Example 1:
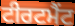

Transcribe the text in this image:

ਟੀਰਟਮੈਂਟ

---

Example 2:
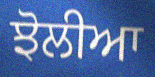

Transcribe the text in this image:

ਝੋਲੀਆ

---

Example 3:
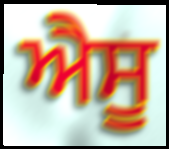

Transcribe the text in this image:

ਐਸੂ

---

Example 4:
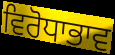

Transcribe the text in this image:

ਵਿਰੋਧਾਭਾਵ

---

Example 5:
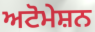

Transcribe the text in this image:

ਅਟੋਮੇਸ਼ਨ